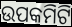
ଉପକମିଟି